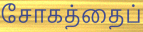
சோகத்தைப்